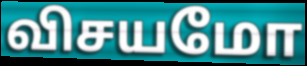
விசயமோ